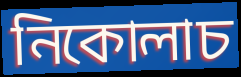
নিকোলাচ